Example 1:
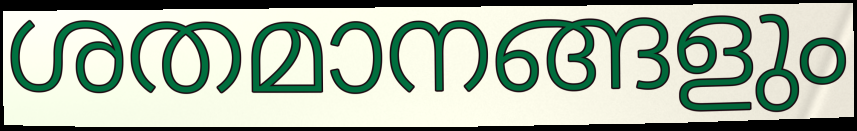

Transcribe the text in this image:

ശതമാനങ്ങളും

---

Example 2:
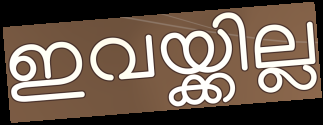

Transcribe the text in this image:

ഇവയ്ക്കില്ല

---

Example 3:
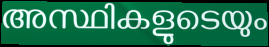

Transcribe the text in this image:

അസ്ഥികളുടെയും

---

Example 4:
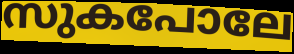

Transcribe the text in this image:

സുകപോലേ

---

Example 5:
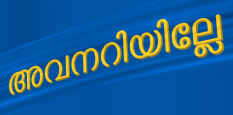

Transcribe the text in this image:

അവനറിയില്ലേ